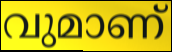
വുമാണ്